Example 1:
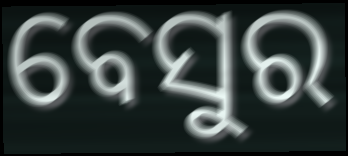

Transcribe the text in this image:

ବେସୁର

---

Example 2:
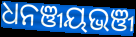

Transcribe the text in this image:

ଧନଞ୍ଜୟଭଞ୍ଜ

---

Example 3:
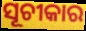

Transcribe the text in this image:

ସୂଚୀକାର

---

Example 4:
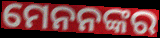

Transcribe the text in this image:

ମେନନଙ୍କର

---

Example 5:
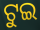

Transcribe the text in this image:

ଟୁଇ